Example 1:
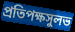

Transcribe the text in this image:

প্রতিপক্ষসুলভ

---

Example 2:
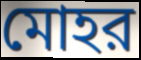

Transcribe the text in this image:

মোহর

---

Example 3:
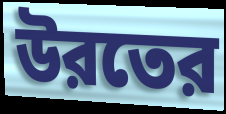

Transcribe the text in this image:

উরতের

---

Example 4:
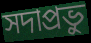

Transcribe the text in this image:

সদাপ্রভু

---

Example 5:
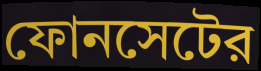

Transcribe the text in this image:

ফোনসেটের